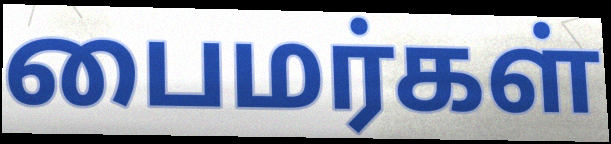
பைமர்கள்